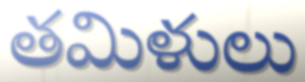
తమిళులు